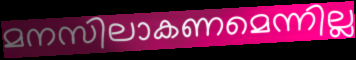
മനസിലാകണമെന്നില്ല